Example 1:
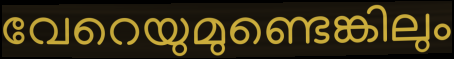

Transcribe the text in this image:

വേറെയുമുണ്ടെങ്കിലും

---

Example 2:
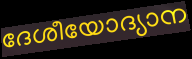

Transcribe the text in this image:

ദേശീയോദ്യാന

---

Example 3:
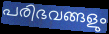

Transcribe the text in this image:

പരിഭവങ്ങളും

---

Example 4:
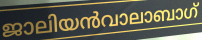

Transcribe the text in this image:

ജാലിയൻവാലാബാഗ്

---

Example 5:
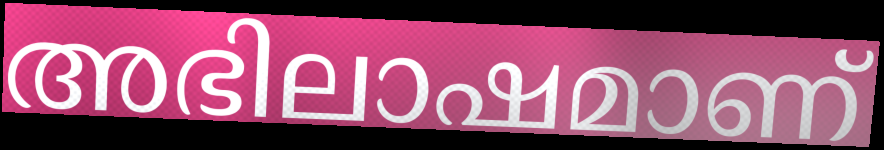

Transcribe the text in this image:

അഭിലാഷമാണ്